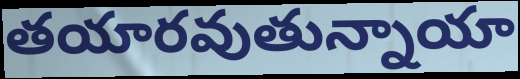
తయారవుతున్నాయా